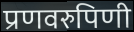
प्रणवरुपिणी